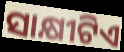
ସାକ୍ଷୀଟିଏ